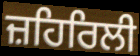
ਜ਼ਹਿਰਿਲੀ